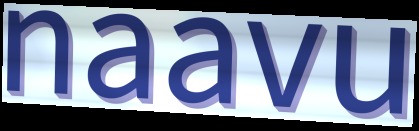
naavu